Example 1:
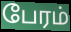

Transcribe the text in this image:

பேரம்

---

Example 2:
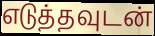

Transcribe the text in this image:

எடுத்தவுடன்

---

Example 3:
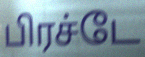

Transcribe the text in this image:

பிரச்டே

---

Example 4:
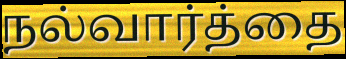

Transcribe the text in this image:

நல்வார்த்தை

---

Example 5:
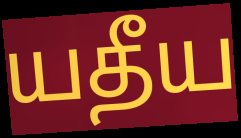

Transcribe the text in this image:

யதீய